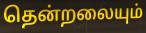
தென்றலையும்